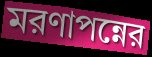
মরণাপন্নের